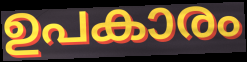
ഉപകാരം